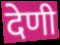
देणी